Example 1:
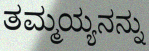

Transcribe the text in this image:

ತಮ್ಮಯ್ಯನನ್ನು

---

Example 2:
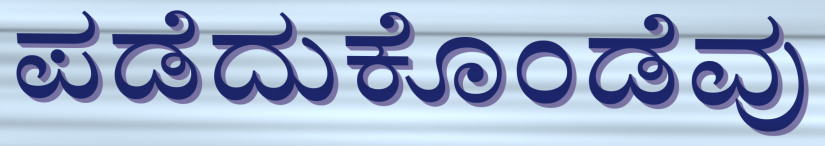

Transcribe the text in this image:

ಪಡೆದುಕೊಂಡೆವು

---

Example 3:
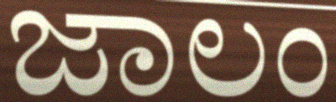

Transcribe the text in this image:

ಜಾಲಂ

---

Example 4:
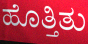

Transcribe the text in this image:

ಹೊತ್ತಿತು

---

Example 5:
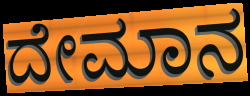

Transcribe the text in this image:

ದೇಮಾನ